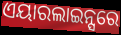
ଏୟାରଲାଇନ୍ସରେ